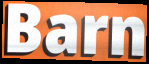
Barn